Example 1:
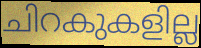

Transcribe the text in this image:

ചിറകുകളില്ല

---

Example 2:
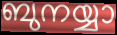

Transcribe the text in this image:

ബുനയ്യാ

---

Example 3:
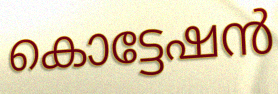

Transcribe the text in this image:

കൊട്ടേഷൻ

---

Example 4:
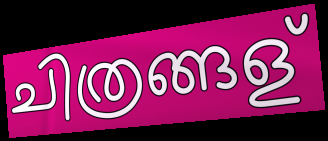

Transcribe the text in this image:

ചിത്രങ്ങള്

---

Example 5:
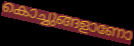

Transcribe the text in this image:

കൊച്ചുങ്ങളാണോ